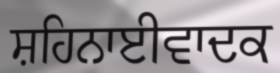
ਸ਼ਹਿਨਾਈਵਾਦਕ